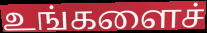
உங்களைச்